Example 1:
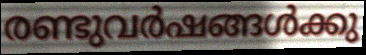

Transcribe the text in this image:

രണ്ടുവർഷങ്ങൾക്കു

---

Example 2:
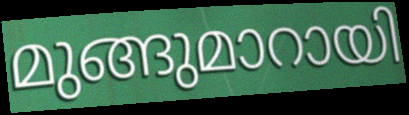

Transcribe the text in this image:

മുങ്ങുമാറായി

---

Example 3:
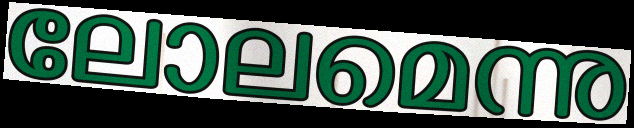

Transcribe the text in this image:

ലോലമെന്നു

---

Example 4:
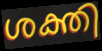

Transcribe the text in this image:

ശക്തി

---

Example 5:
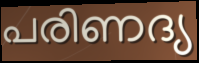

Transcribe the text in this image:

പരിണദ്യ